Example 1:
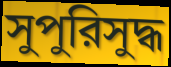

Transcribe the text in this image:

সুপুরিসুদ্ধ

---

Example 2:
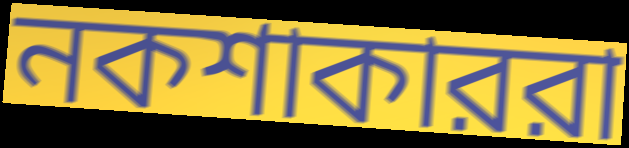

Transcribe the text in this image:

নকশাকাররা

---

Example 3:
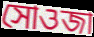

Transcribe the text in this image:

সোওজা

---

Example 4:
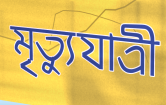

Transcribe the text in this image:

মৃত্যুযাত্রী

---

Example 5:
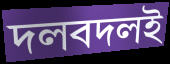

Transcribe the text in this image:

দলবদলই